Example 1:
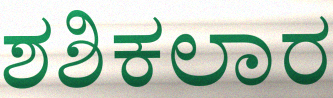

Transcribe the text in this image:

ಶಶಿಕಲಾರ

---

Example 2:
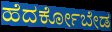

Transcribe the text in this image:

ಹೆದರ್ಕೋಬೇಡ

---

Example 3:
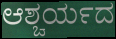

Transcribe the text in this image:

ಆಶ್ಚರ್ಯದ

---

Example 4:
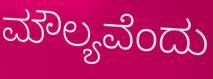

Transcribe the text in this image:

ಮೌಲ್ಯವೆಂದು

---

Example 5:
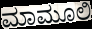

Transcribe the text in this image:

ಮಾಮೂಲಿ